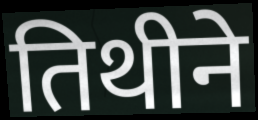
तिथीने